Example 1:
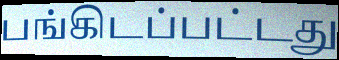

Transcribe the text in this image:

பங்கிடப்பட்டது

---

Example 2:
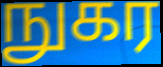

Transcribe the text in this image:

நுகர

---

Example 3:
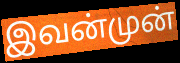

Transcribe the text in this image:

இவன்முன்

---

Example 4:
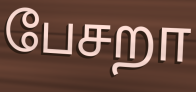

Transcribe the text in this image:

பேசறா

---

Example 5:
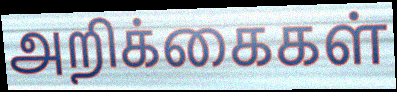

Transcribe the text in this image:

அறிக்கைகள்